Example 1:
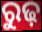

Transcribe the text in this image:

ରୁଢ଼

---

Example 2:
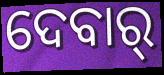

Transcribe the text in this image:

ଦେବାର୍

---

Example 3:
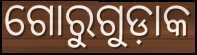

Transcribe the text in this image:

ଗୋରୁଗୁଡ଼ାକ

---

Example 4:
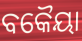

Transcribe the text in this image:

ବକୈୟା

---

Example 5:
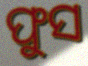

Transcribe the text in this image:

ଫୁସ